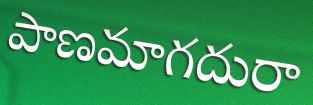
పాణమాగదురా